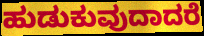
ಹುಡುಕುವುದಾದರೆ